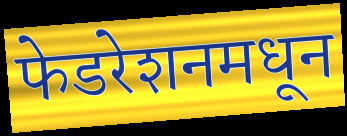
फेडरेशनमधून